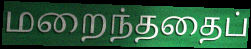
மறைந்ததைப்